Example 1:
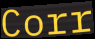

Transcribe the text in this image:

Corr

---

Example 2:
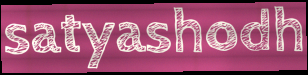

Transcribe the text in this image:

satyashodh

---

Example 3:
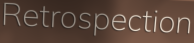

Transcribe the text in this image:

Retrospection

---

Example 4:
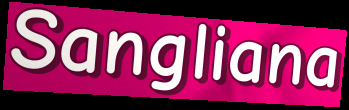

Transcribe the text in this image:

Sangliana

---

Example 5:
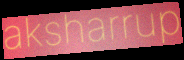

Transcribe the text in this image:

aksharrup